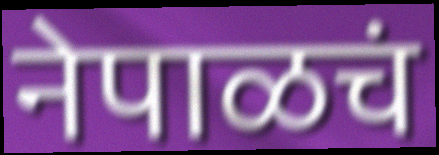
नेपाळचं